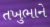
તખુભાને